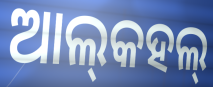
ଆଲ୍‌କହଲ୍